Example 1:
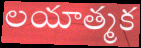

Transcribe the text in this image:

లయాత్మక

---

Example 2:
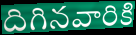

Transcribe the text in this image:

దిగినవారికి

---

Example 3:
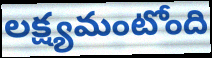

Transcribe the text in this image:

లక్ష్యమంటోంది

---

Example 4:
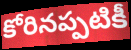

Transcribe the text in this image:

కోరినప్పటికీ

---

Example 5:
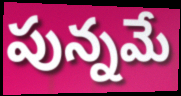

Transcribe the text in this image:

పున్నమే